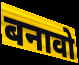
बनावो